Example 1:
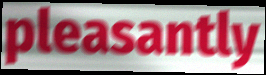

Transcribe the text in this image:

pleasantly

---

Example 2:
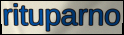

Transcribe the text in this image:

rituparno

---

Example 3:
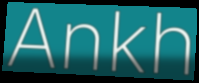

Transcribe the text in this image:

Ankh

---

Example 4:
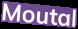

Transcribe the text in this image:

Moutal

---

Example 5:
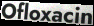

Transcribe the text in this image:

Ofloxacin